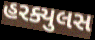
હરક્યુલસ